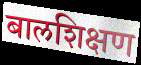
बालशिक्षण